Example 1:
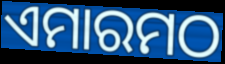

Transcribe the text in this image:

ଏମାରମଠ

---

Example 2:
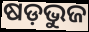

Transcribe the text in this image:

ଷଡ଼ଭୁଜ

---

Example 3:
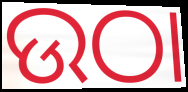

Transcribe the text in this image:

ଉଠା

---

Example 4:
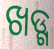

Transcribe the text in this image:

ଖଡ୍ଗ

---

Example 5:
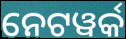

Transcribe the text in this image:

ନେଟୱର୍କ